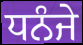
ਧਨੰਜੇ